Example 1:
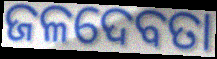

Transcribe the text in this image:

ଜଳଦେବତା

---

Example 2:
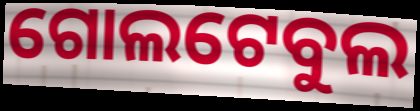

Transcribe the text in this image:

ଗୋଲଟେବୁଲ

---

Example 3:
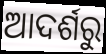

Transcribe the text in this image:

ଆଦର୍ଶରୁ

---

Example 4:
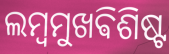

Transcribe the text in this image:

ଲମ୍ବମୁଖଵିଶିଷ୍ଟ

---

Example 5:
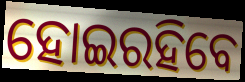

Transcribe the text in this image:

ହୋଇରହିବେ